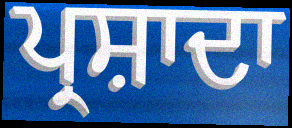
ਪ੍ਰਸ਼ਾਦਾ